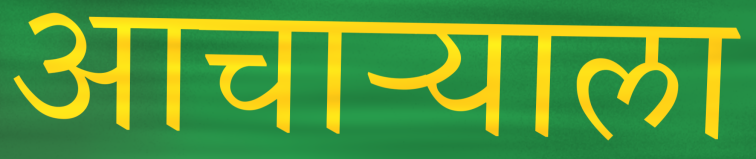
आचाऱ्याला